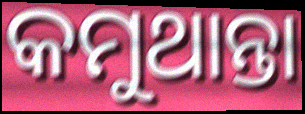
କମୁଥାନ୍ତା